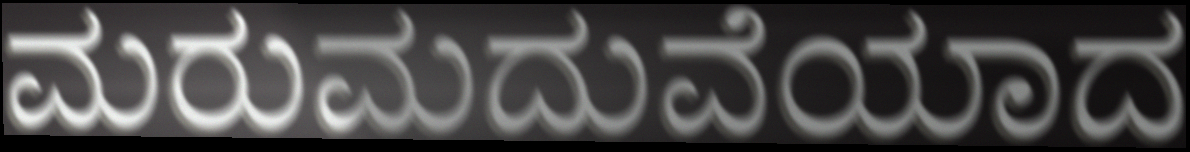
ಮರುಮದುವೆಯಾದ